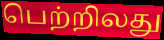
பெற்றிலது